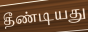
தீண்டியது